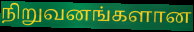
நிறுவனங்களான